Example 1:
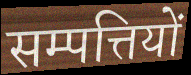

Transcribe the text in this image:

सम्पत्तियों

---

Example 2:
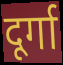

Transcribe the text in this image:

दूर्गा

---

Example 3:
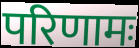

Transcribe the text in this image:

परिणामः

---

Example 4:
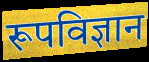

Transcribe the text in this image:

रूपविज्ञान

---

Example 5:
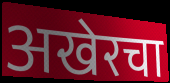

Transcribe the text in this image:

अखेरचा